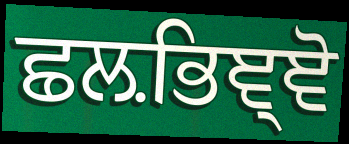
ਛਲ਼ਭਿਞ੍ਞੋ